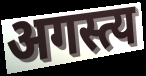
अगस्त्य